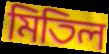
মিতিল